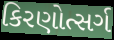
કિરણોત્સર્ગ